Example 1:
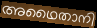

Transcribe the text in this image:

അഥൈതാനി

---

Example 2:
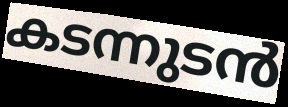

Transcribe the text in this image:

കടന്നുടൻ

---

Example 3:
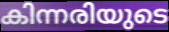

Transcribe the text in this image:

കിന്നരിയുടെ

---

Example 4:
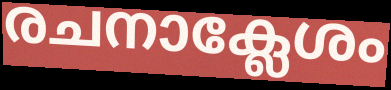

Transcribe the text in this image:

രചനാക്ലേശം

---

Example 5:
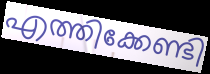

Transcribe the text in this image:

എത്തിക്കേണ്ടി